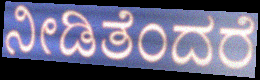
ನೀಡಿತೆಂದರೆ